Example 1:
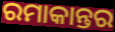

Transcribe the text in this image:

ରମାକାନ୍ତର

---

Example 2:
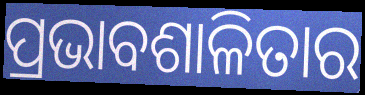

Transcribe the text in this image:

ପ୍ରଭାବଶାଳିତାର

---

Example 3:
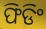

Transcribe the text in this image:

ଫିଡିଂ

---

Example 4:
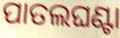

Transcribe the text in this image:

ପାତଲଘଣ୍ଟା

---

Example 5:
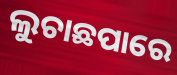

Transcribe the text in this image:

ଲୁଚାଛପାରେ